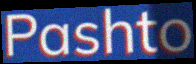
Pashto